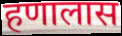
हणालास